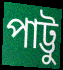
পাট্টু